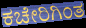
ಕಚೇರಿಗಿಂತ